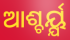
ଆଶ୍ଚର୍ୟ୍ଯ